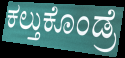
ಕಲ್ತುಕೊಂಡ್ರೆ